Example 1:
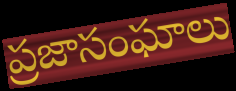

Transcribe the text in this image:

ప్రజాసంఘాలు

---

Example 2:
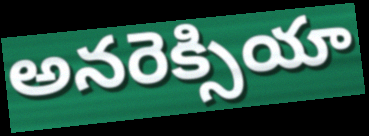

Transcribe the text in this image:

అనరెక్సియా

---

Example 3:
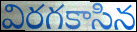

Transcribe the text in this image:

విరగకాసిన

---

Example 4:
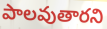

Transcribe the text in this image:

పాలవుతారని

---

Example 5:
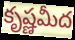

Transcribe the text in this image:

కృష్ణమీద